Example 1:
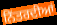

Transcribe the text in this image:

ਨਿੱਤਰਦੀਆਂ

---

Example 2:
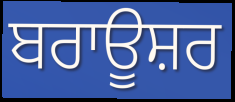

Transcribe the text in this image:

ਬਰਾਊਸ਼ਰ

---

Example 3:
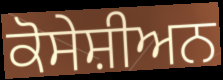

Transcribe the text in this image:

ਕੋਸੇਸ਼ੀਅਨ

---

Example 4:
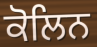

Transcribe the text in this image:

ਕੋਲਿਨ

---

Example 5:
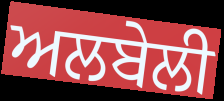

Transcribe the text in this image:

ਅਲਬੇਲੀ